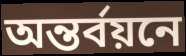
অন্তর্বয়নে